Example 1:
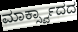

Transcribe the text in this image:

ಮಾರ್ಕ್ಸ್ವಾದದ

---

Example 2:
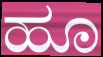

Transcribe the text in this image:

ಹೂ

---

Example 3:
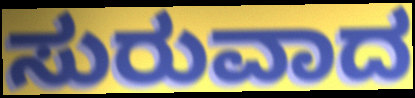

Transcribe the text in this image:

ಸುರುವಾದ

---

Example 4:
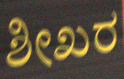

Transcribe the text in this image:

ಶೀಖರ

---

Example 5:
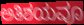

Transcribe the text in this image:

ಅತಿಶಯವೂ